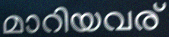
മാറിയവര്